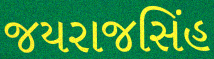
જયરાજસિંહ